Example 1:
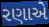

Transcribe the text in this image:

રણાએ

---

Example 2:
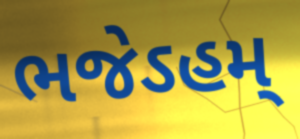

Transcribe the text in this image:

ભજેઽહમ્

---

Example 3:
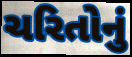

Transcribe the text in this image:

ચરિતોનું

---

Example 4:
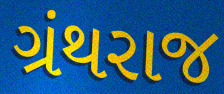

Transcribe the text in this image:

ગ્રંથરાજ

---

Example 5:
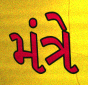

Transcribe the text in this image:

મંત્રે